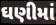
ઘણીમાં